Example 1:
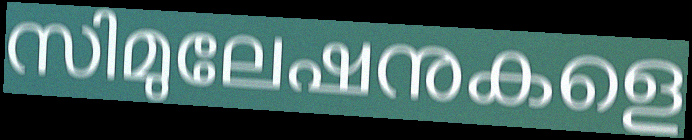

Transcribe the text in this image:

സിമുലേഷനുകളെ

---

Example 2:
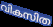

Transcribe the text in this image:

വികസിത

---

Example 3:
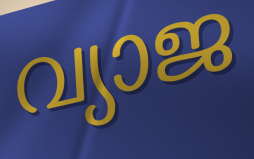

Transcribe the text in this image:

വ്യാജ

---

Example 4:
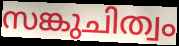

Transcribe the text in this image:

സങ്കുചിത്വം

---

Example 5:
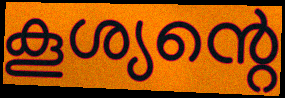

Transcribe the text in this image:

കൂശ്യന്റെ